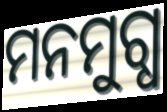
ମନମୁଗ୍ଧ